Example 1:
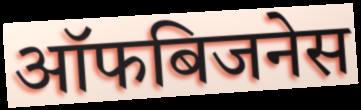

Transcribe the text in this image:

ऑफबिजनेस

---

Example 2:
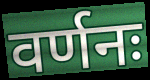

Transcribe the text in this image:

वर्णनः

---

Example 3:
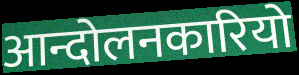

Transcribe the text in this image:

आन्दोलनकारियो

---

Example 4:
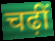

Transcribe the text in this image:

चढ़ीं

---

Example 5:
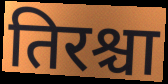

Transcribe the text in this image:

तिरश्चा